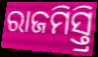
ରାଜମିସ୍ତ୍ରି